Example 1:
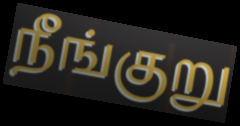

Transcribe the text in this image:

நீங்குறு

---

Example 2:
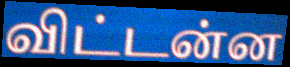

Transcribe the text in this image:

விட்டன்ன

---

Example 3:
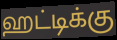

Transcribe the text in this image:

ஹட்டிக்கு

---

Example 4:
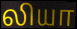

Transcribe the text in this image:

லியா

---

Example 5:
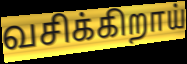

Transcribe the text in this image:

வசிக்கிறாய்